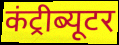
कंट्रीब्यूटर